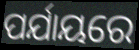
ପର୍ଯାୟରେ